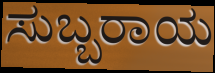
ಸುಬ್ಬರಾಯ